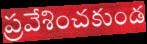
ప్రవేశించకుండ